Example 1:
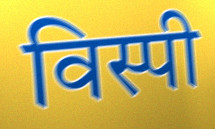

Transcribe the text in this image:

विस्पी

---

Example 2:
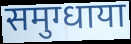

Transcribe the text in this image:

समुग्धाया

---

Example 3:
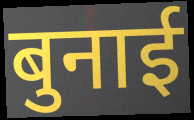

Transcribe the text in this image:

बुनाई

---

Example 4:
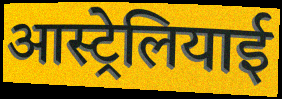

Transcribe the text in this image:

आस्ट्रेलियाई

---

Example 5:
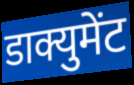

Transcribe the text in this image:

डाक्युमेंट